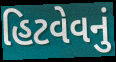
હિટવેવનું